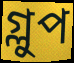
গ্লুপ